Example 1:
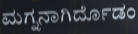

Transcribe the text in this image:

ಮಗ್ನನಾಗಿರ್ದೊಡಂ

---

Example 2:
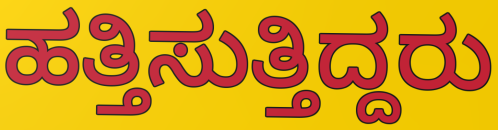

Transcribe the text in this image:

ಹತ್ತಿಸುತ್ತಿದ್ದರು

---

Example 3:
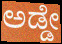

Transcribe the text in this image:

ಅಡ್ಡೇ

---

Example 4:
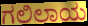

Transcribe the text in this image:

ಗಲಿಲಾಯ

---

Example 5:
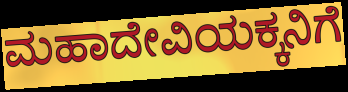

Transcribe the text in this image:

ಮಹಾದೇವಿಯಕ್ಕನಿಗೆ